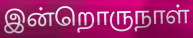
இன்றொருநாள்